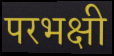
परभक्षी